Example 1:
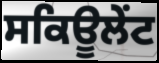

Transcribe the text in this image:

ਸਕਿਊਲੇਂਟ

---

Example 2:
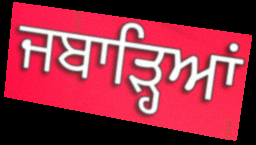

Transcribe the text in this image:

ਜਬਾੜ੍ਹਿਆਂ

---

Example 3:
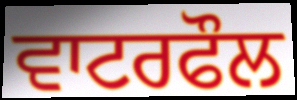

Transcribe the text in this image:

ਵਾਟਰਫੌਲ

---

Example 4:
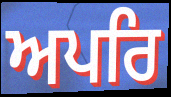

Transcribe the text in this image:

ਅਪਰਿ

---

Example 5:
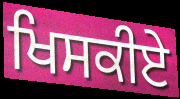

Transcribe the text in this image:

ਖਿਸਕੀਏ